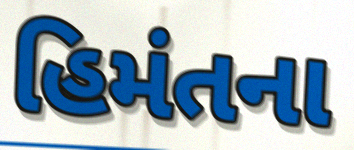
હિમંતના